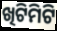
ଖିଟିମିଟି